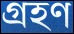
গ্ৰহণ